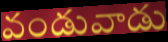
వండువాడు